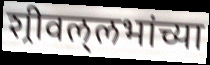
श्रीवल्लभांच्या